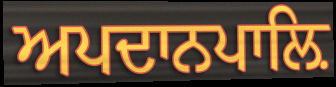
ਅਪਦਾਨਪਾਲ਼ਿ